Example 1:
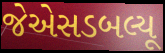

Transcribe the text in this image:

જેએસડબલ્યૂ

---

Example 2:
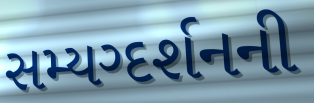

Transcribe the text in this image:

સમ્યગ્દર્શનની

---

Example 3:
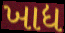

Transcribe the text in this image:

ખાદ્ય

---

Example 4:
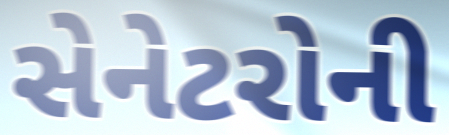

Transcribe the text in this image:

સેનેટરોની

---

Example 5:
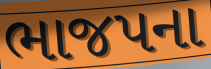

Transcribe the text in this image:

ભાજપના